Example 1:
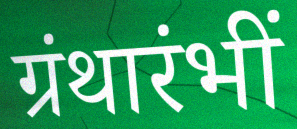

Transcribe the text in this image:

ग्रंथारंभीं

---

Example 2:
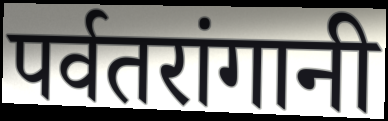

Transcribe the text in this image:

पर्वतरांगानी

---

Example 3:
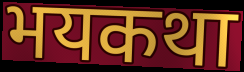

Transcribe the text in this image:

भयकथा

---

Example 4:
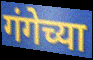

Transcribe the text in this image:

गंगेच्या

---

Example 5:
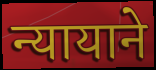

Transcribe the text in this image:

न्यायाने